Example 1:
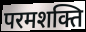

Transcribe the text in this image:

परमशक्ति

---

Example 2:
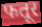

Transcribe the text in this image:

फतूर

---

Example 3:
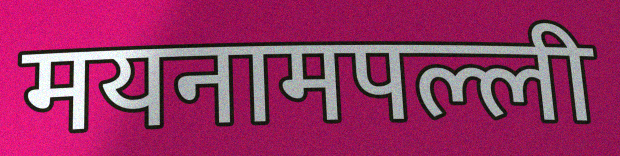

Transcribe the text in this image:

मयनामपल्ली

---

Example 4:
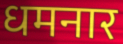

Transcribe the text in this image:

धमनार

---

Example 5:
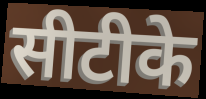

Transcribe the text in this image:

सीटीके